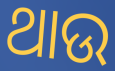
ଥାଉ